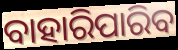
ବାହାରିପାରିବ